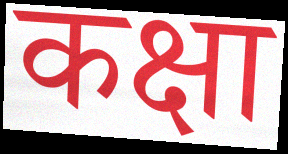
कक्षा